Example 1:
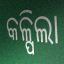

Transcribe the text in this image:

କଳ୍ପିଲା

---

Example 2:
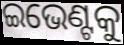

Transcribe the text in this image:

ଇଭେଣ୍ଟକୁ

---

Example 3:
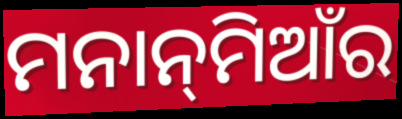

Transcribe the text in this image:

ମନାନ୍‌ମିଆଁର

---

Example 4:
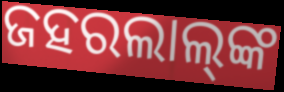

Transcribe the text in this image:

ଜହରଲାଲ୍‌ଙ୍କ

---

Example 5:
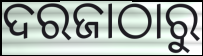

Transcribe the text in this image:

ଦରଜାଠାରୁ